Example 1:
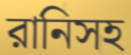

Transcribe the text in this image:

রানিসহ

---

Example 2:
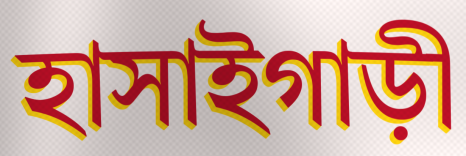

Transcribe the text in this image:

হাসাইগাড়ী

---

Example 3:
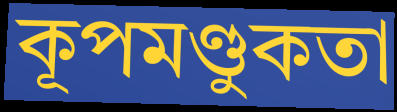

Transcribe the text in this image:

কূপমণ্ডুকতা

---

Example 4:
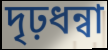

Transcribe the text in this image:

দৃঢ়ধন্বা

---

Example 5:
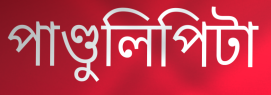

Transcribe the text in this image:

পাণ্ডুলিপিটা